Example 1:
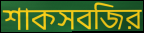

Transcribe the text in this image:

শাকসবজির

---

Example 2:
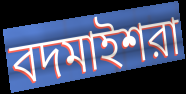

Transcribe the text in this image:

বদমাইশরা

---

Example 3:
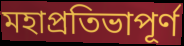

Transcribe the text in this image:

মহাপ্রতিভাপূর্ণ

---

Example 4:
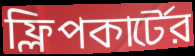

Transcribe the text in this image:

ফ্লিপকার্টের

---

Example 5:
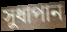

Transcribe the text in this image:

সুধাপান